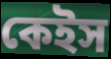
কেইস